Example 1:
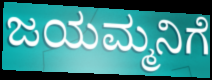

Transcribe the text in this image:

ಜಯಮ್ಮನಿಗೆ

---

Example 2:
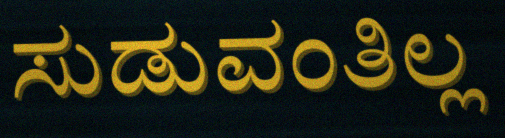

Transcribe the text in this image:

ಸುಡುವಂತಿಲ್ಲ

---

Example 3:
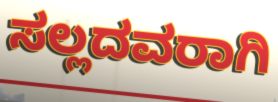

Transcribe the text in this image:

ಸಲ್ಲದವರಾಗಿ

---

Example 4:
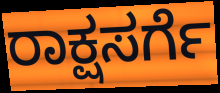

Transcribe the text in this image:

ರಾಕ್ಷಸರ್ಗೆ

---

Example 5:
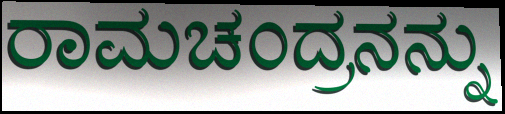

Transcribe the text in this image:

ರಾಮಚಂದ್ರನನ್ನು